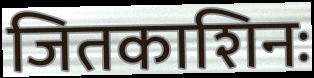
जितकाशिनः